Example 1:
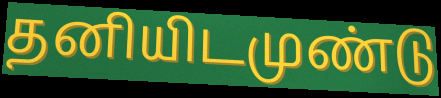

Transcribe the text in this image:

தனியிடமுண்டு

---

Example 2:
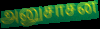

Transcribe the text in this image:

அனுசாசன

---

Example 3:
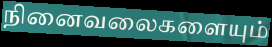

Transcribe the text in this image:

நினைவலைகளையும்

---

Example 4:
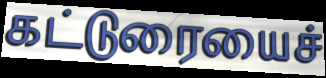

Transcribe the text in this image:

கட்டுரையைச்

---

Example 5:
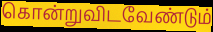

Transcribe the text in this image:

கொன்றுவிடவேண்டும்